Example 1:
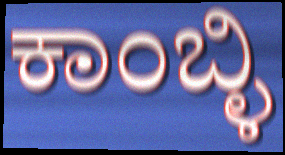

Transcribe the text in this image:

ಕಾಂಬ್ಳಿ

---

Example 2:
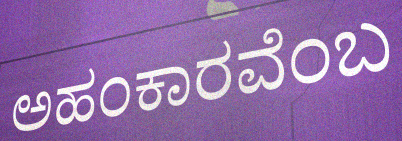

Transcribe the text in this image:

ಅಹಂಕಾರವೆಂಬ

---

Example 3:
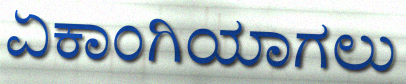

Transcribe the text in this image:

ಏಕಾಂಗಿಯಾಗಲು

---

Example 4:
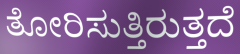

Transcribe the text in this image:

ತೋರಿಸುತ್ತಿರುತ್ತದೆ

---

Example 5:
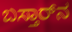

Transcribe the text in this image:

ಬಸ್ತಾರ್‌ನ